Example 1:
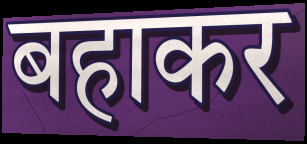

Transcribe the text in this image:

बहाकर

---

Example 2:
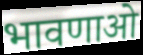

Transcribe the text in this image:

भावणाओ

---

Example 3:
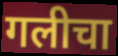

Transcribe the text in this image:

गलीचा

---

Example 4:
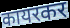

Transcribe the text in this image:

कायरकर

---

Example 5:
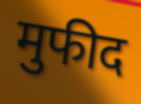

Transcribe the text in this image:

मुफीद